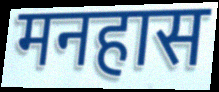
मनहास